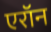
एरॉन